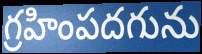
గ్రహింపదగును